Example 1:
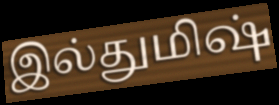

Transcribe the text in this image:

இல்துமிஷ்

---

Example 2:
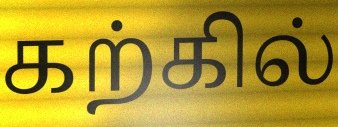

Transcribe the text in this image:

கற்கில்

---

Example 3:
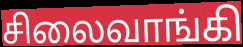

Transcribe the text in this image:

சிலைவாங்கி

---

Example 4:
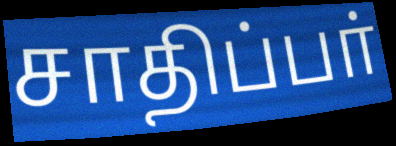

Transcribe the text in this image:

சாதிப்பர்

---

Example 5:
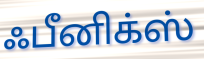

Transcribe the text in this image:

ஃபீனிக்ஸ்